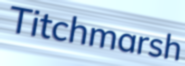
Titchmarsh